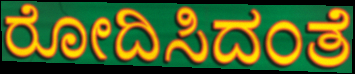
ರೋದಿಸಿದಂತೆ